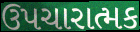
ઉપચારાત્મક